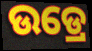
ଉଡ୍ରେ